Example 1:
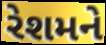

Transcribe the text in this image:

રેશમને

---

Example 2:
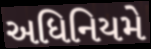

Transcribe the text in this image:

અધિનિયમે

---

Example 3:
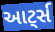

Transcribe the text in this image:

આટ્‌ર્સ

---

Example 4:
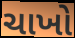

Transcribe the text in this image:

ચાખો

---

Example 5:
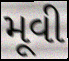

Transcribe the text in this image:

મૂવી